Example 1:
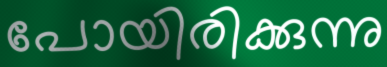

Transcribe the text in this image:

പോയിരിക്കുന്നു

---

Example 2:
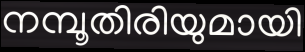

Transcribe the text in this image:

നമ്പൂതിരിയുമായി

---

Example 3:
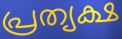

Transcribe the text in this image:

പ്രത്യക്ഷ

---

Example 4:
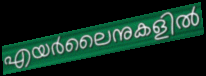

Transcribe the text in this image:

എയർലൈനുകളിൽ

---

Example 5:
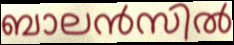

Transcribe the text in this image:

ബാലൻസിൽ